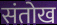
संतोख